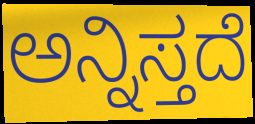
ಅನ್ನಿಸ್ತದೆ